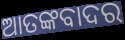
ଆତଙ୍କବାଦର